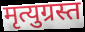
मृत्युग्रस्त